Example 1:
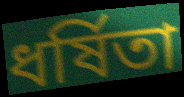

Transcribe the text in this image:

ধৰ্ষিতা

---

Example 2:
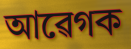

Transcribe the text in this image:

আৱেগক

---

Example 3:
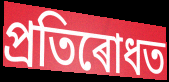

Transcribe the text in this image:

প্ৰতিৰোধত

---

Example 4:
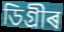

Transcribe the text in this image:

ডিগ্ৰীৰ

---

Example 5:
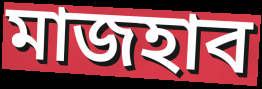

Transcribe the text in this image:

মাজহাব